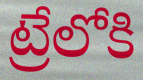
ట్రేలోకి